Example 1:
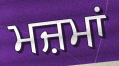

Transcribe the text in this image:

ਮਜ਼ਮਾਂ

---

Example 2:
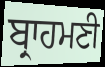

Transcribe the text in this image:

ਬ੍ਰਾਹਮਣੀ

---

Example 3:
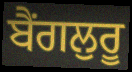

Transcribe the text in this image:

ਬੈਂਗਲੁਰੂ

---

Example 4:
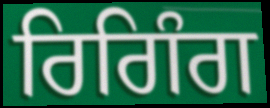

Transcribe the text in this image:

ਰਿਗਿੰਗ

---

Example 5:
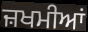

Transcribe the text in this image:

ਜ਼ਖਮੀਆਂ